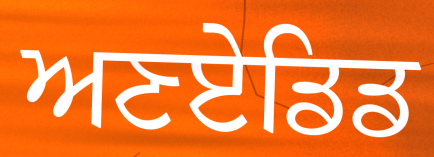
ਅਣਏਡਿਡ